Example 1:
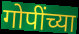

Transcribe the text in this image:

गोपींच्या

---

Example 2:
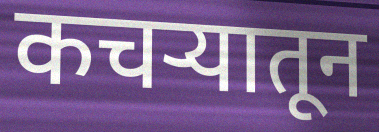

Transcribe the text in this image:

कचर्‍यातून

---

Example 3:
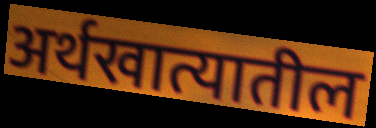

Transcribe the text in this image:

अर्थखात्यातील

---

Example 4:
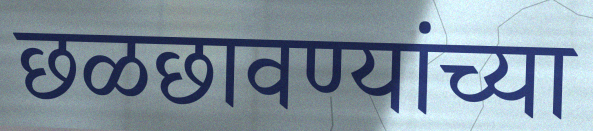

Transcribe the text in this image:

छळछावण्यांच्या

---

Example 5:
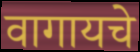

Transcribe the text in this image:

वागायचे